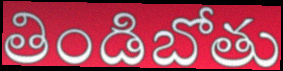
తిండిబోతు